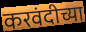
करवंदीच्या